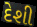
દેશી